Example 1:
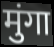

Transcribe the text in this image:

मुंगा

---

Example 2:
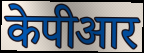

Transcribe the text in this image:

केपीआर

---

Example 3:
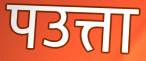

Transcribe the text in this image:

पउत्ता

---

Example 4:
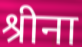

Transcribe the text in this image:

श्रीना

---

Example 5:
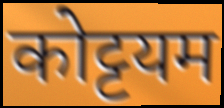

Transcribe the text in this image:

कोट्टयम